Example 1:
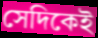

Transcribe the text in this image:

সেদিকেই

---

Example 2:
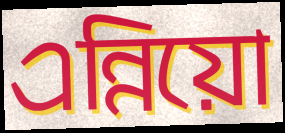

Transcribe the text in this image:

এন্নিয়ো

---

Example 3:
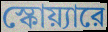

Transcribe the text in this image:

স্কোয়্যারে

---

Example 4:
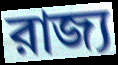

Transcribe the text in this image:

রাজ্য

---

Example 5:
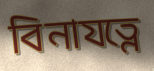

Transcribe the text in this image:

বিনাযত্নে